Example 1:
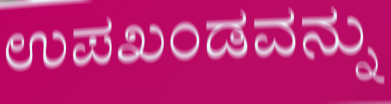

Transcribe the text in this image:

ಉಪಖಂಡವನ್ನು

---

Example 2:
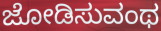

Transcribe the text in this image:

ಜೋಡಿಸುವಂಥ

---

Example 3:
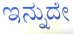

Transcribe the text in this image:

ಇನ್ನುದೇ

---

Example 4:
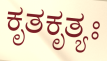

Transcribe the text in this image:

ಕೃತಕೃತ್ಯಃ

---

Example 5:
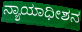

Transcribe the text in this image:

ನ್ಯಾಯಾಧೀಶನ